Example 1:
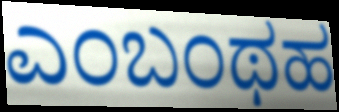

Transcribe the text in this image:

ಎಂಬಂಥಹ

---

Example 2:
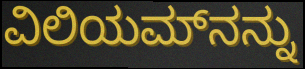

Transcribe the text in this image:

ವಿಲಿಯಮ್‌ನನ್ನು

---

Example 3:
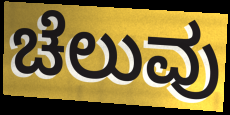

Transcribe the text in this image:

ಚೆಲುವು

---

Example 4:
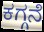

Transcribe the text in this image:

ಕಗ್ಗನೆ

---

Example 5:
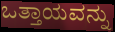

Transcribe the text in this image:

ಒತ್ತಾಯವನ್ನು